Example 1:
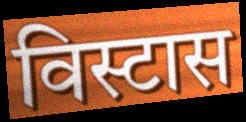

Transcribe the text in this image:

विस्टास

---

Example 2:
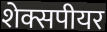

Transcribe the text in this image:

शेक्सपीयर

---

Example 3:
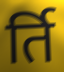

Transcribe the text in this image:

र्ति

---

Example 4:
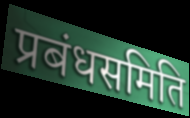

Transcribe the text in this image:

प्रबंधसमिति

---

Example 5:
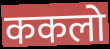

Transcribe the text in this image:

ककलो